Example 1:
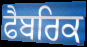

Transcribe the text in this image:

ਫੈਬਰਿਕ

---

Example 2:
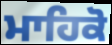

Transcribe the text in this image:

ਮਾਹਿਕੋ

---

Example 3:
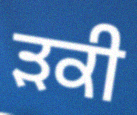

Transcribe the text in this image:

ੜਕੀ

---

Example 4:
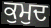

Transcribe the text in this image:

ਕੁਮੁਦ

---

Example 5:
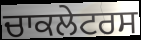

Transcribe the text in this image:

ਚਾਕਲੇਟਰਸ